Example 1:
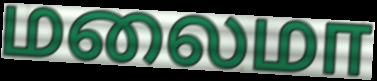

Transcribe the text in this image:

மலைமா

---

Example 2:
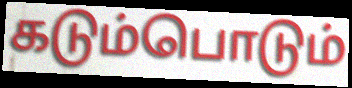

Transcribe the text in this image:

கடும்பொடும்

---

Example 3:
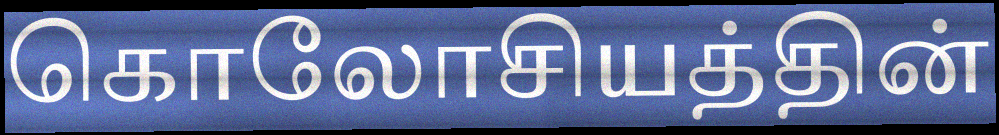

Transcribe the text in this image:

கொலோசியத்தின்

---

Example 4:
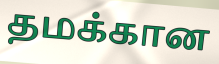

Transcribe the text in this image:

தமக்கான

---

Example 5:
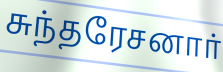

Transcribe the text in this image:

சுந்தரேசனார்